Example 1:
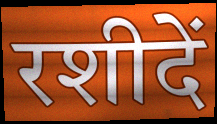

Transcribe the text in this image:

रशीदें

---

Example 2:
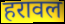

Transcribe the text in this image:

हरावल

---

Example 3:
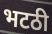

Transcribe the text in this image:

भटठी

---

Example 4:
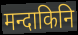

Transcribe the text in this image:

मन्दाकिनि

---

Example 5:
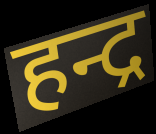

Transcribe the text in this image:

हन्द्र